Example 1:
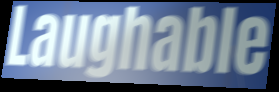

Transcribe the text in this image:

Laughable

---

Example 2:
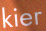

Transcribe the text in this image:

kier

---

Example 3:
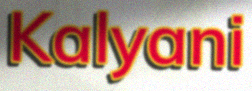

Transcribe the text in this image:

Kalyani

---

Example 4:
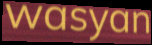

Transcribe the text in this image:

wasyan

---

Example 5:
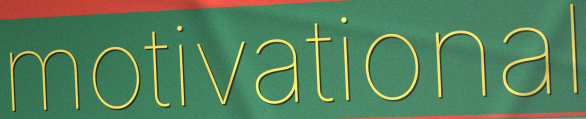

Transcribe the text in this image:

motivational